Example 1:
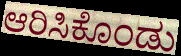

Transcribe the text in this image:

ಆರಿಸಿಕೊಂಡು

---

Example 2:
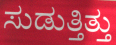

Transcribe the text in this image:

ಸುಡುತ್ತಿತ್ತು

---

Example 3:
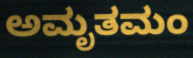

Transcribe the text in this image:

ಅಮೃತಮಂ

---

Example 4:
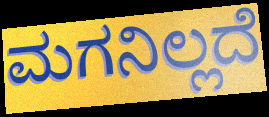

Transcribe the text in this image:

ಮಗನಿಲ್ಲದೆ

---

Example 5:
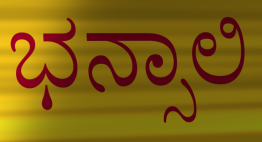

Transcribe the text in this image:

ಭನ್ಸಾಲಿ